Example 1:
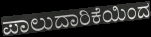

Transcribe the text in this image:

ಪಾಲುದಾರಿಕೆಯಿಂದ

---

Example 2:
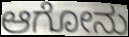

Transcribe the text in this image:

ಆಗೋನು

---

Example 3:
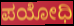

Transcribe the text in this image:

ಪಯೋಧಿ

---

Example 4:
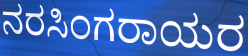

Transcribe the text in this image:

ನರಸಿಂಗರಾಯರ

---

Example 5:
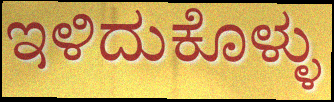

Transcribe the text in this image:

ಇಳಿದುಕೊಳ್ಳು